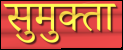
सुमुक्ता